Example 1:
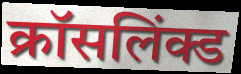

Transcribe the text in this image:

क्रॉसलिंक्ड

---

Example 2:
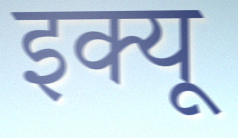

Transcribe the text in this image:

इक्यू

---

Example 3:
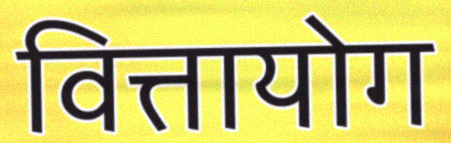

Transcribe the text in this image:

वित्तायोग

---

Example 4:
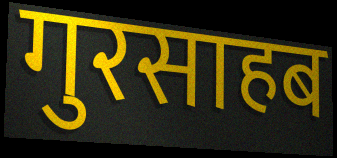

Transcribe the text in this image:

गुरसाहब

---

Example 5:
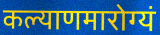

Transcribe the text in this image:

कल्याणमारोग्यं